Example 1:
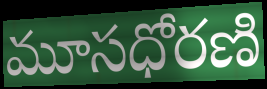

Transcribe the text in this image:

మూసధోరణి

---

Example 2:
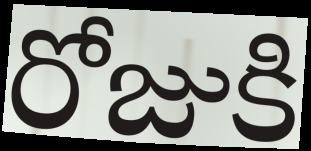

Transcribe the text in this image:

రోజుకి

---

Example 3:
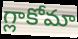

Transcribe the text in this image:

గ్లాకోమా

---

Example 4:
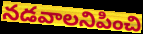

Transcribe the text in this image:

నడవాలనిపించి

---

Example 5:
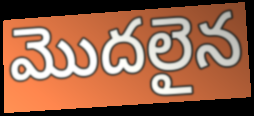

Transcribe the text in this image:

మొదలైన